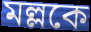
মল্লকে